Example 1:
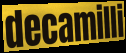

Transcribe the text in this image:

decamilli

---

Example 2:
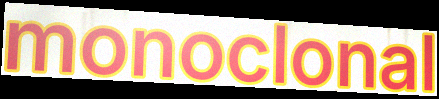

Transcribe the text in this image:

monoclonal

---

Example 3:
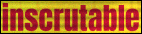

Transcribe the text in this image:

inscrutable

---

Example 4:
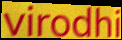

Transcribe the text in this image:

virodhi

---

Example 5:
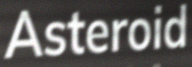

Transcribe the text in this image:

Asteroid